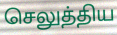
செலுத்திய